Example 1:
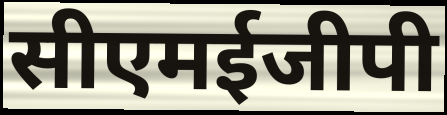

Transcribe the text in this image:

सीएमईजीपी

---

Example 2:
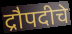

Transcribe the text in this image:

द्रौपदीचे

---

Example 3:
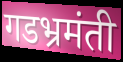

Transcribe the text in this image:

गडभ्रमंती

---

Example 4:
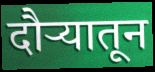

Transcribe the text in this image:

दौर्‍यातून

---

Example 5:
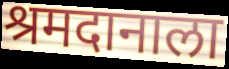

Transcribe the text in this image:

श्रमदानाला